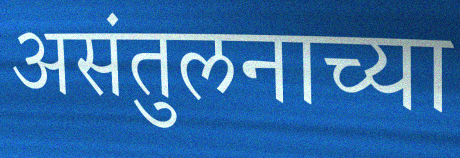
असंतुलनाच्या